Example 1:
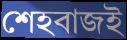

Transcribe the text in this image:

শেহবাজই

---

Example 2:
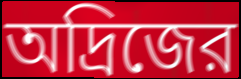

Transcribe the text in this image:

অদ্রিজের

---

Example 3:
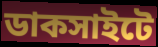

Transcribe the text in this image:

ডাকসাইটে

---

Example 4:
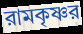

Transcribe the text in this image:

রামকৃষ্ণর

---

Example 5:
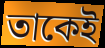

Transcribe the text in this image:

তাকেই